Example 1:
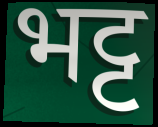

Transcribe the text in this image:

भट्ट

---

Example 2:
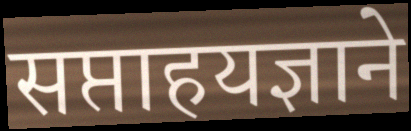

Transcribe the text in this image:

सप्ताहयज्ञाने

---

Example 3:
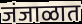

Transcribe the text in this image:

जंजाळात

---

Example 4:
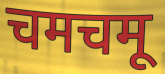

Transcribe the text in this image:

चमचमू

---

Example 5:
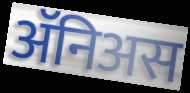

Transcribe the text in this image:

ॲनिअस